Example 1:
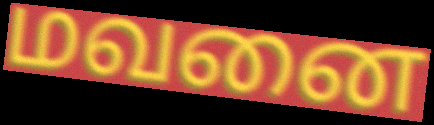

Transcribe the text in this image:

மவனை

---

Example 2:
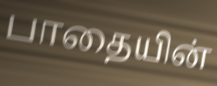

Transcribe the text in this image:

பாதையின்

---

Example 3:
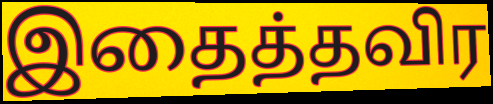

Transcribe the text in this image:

இதைத்தவிர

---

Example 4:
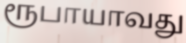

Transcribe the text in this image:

ரூபாயாவது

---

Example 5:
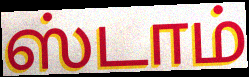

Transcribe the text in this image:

ஸ்டாம்